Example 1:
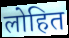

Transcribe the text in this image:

लोहित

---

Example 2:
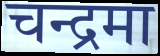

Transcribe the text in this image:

चन्द्रमा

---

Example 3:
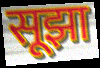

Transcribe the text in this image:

सूझा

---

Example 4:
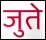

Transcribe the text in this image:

जुते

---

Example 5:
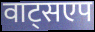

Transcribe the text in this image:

वाट्सएप